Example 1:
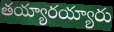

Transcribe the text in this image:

తయ్యారయ్యారు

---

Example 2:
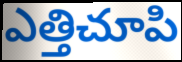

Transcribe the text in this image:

ఎత్తిచూపి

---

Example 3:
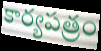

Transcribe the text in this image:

కార్యపత్రం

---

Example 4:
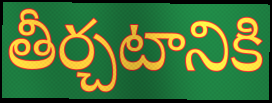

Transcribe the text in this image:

తీర్చటానికి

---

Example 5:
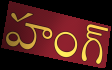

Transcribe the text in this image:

హంగ్